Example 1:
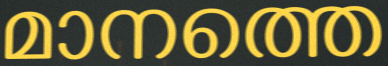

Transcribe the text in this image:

മാനത്തെ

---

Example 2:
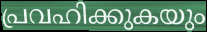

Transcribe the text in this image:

പ്രവഹിക്കുകയും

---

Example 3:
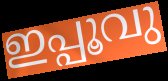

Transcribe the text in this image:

ഇപ്പൂവു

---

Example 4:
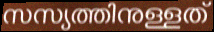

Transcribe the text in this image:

സസ്യത്തിനുള്ളത്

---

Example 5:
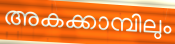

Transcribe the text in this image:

അകക്കാമ്പിലും